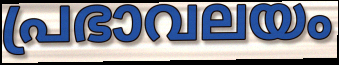
പ്രഭാവലയം